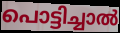
പൊട്ടിച്ചാൽ